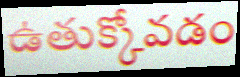
ఉతుక్కోవడం